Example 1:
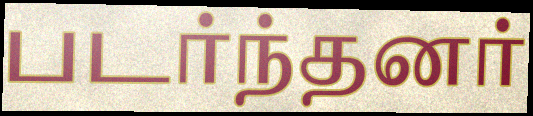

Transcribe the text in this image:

படர்ந்தனர்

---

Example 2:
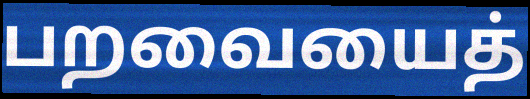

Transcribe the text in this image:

பறவையைத்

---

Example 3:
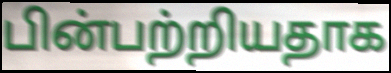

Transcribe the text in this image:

பின்பற்றியதாக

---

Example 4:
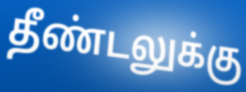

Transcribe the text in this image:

தீண்டலுக்கு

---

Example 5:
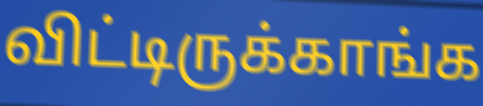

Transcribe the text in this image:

விட்டிருக்காங்க